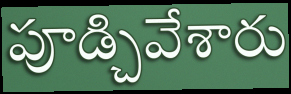
పూడ్చివేశారు